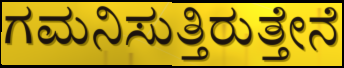
ಗಮನಿಸುತ್ತಿರುತ್ತೇನೆ